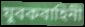
যুবকবাহিনী